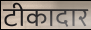
टीकादार